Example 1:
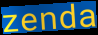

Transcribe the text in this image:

zenda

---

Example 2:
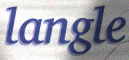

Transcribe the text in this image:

langle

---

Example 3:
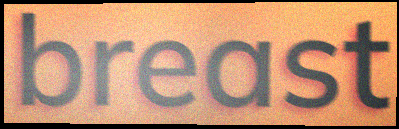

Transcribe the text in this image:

breast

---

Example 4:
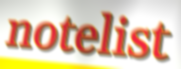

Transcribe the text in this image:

notelist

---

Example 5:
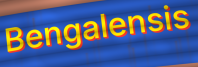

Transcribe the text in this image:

Bengalensis